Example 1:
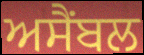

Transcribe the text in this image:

ਅਸੈਂਬਲ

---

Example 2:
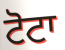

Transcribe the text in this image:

ਟੋਟਾ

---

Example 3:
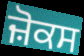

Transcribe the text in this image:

ਜ਼ੋਕਸ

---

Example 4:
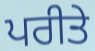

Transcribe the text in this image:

ਪਰੀਤੇ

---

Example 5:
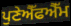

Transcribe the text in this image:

ਪੁਣੇਐੱਫਐੱਮ